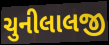
ચુનીલાલજી